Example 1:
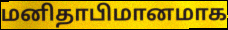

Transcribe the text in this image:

மனிதாபிமானமாக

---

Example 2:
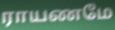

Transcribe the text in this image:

ராயணமே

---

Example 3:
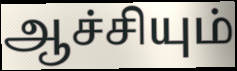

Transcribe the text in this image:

ஆச்சியும்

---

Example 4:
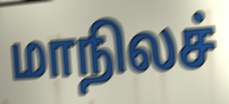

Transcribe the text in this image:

மாநிலச்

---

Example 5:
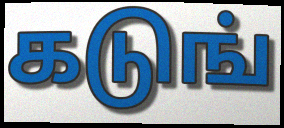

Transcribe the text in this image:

கடுங்